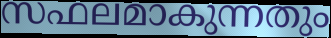
സഫലമാകുന്നതും